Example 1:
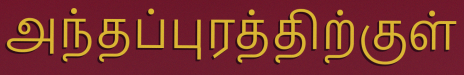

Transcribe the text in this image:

அந்தப்புரத்திற்குள்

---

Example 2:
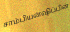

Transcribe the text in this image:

சாம்பியன்ஷிப்பின்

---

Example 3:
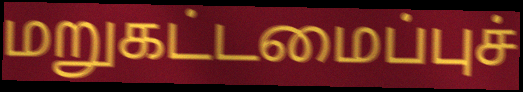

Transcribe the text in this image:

மறுகட்டமைப்புச்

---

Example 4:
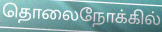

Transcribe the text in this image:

தொலைநோக்கில்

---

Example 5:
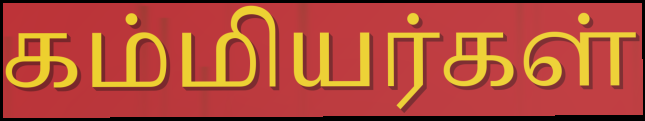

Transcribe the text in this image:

கம்மியர்கள்